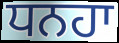
ਧਨਹਾ